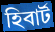
হিবার্ট